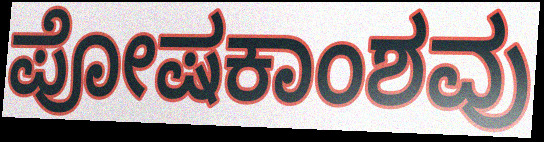
ಪೋಷಕಾಂಶವು